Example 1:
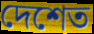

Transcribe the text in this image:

দেশেত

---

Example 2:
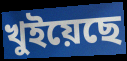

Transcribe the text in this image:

খুইয়েছে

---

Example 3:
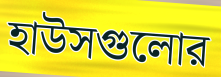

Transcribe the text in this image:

হাউসগুলোর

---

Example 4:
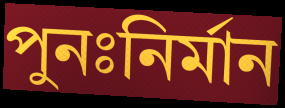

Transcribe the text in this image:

পুনঃনির্মান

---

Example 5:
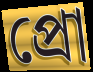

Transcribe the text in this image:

প্রো